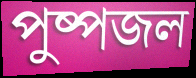
পুষ্পজল